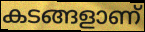
കടങ്ങളാണ്